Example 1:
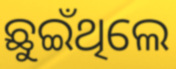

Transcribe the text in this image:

ଛୁଇଁଥିଲେ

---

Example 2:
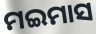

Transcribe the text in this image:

ମଇମାସ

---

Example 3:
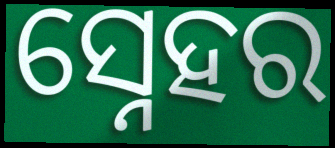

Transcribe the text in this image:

ସ୍ନେହର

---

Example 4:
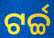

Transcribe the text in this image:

ଟର୍ଚ୍ଚ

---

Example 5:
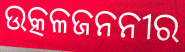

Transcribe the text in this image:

ଉତ୍କଳଜନନୀର